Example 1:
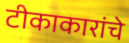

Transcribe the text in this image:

टीकाकारांचे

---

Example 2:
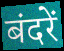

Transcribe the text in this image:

बंदरें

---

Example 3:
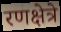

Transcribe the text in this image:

रणक्षेत्रे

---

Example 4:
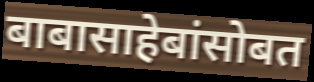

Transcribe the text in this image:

बाबासाहेबांसोबत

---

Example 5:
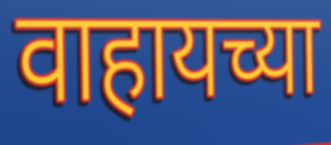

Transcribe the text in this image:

वाहायच्या